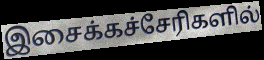
இசைக்கச்சேரிகளில்